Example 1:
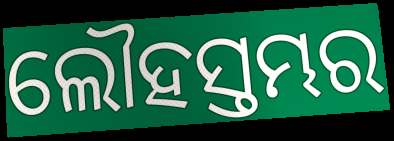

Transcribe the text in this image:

ଲୌହସ୍ତମ୍ଭର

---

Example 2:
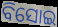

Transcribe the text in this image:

ବିସୋଇ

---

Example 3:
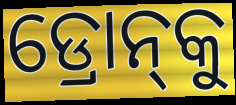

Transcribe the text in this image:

ଡ୍ରୋନ୍‌କୁ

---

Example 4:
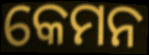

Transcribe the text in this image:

କେମନ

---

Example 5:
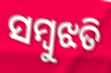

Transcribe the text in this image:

ସମ୍ବୁଝତି